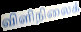
விளிநிலைக்